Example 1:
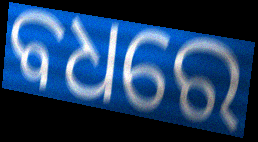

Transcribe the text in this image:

ବଧରେ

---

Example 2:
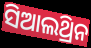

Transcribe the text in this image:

ସିଆଲଥ୍ରିନ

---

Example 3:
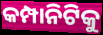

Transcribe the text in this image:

କମ୍ପାନିଟିକୁ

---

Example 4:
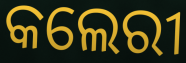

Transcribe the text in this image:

କଲେରୀ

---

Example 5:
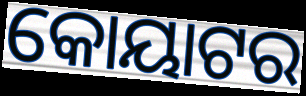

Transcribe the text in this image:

କୋୟାଟର